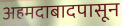
अहमदाबादपासून